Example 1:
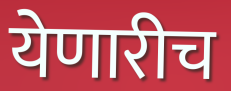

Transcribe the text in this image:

येणारीच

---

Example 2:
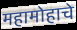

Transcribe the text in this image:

महामोहाचे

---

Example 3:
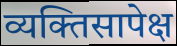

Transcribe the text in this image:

व्यक्तिसापेक्ष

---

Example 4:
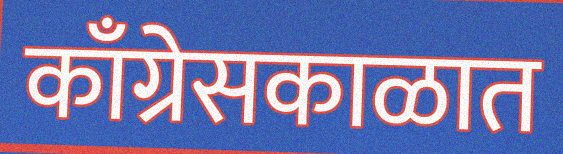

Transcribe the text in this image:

काँग्रेसकाळात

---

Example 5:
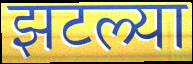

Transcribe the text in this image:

झटल्या